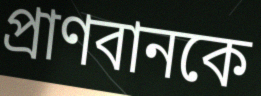
প্রাণবানকে